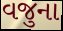
વજુના